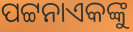
ପଟ୍ଟନାଏକଙ୍କୁ